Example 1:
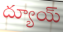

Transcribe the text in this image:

ద్యూయ్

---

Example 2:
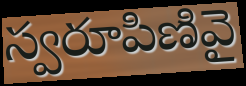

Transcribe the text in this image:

స్వరూపిణివై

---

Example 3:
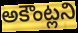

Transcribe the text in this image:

అకౌంట్లని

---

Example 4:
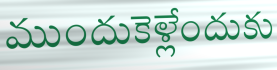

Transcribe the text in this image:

ముందుకెళ్లేందుకు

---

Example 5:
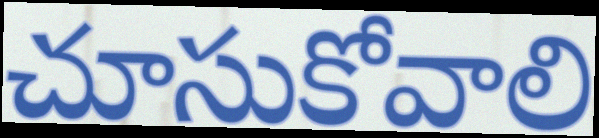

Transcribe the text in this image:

చూసుకోవాలి